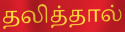
தலித்தால்